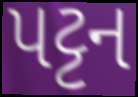
પટ્ટન